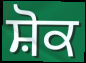
ਸ਼ੋਕ